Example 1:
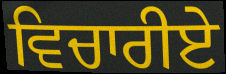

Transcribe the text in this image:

ਵਿਚਾਰੀਏ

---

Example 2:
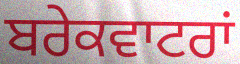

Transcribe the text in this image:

ਬਰੇਕਵਾਟਰਾਂ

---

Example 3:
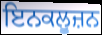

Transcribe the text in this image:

ਇਨਕਲੂਜ਼ਨ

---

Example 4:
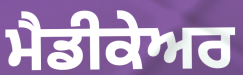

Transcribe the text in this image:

ਮੈਡੀਕੇਅਰ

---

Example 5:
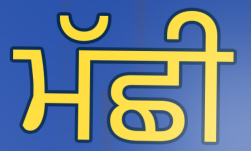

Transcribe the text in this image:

ਮੱਛੀ